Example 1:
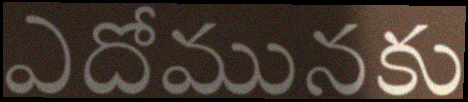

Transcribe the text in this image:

ఎదోమునకు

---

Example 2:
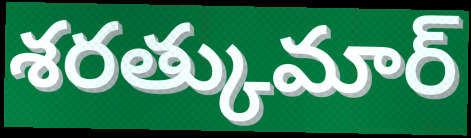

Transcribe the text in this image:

శరత్కుమార్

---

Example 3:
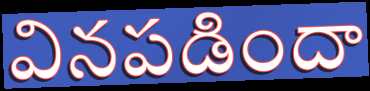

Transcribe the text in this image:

వినపడిందా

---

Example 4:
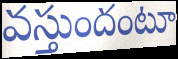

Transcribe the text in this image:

వస్తుందంటూ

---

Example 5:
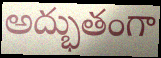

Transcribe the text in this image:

అద్భుతంగా